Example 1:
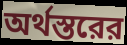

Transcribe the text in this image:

অর্থস্তরের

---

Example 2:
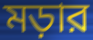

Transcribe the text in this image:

মড়ার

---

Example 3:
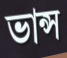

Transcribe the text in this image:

ভান্স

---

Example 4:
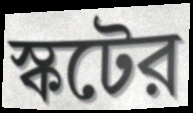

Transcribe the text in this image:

স্কটের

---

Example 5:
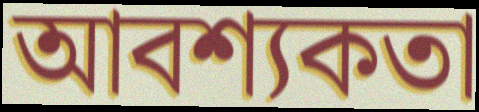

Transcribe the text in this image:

আবশ্যকতা